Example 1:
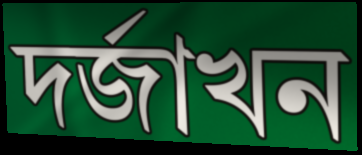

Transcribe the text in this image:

দৰ্জাখন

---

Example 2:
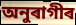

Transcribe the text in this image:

অনুৰাগীৰ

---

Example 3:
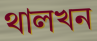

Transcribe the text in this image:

থালখন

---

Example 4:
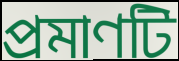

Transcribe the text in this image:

প্ৰমাণটি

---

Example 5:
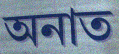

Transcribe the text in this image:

অনাত